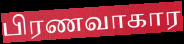
பிரணவாகார